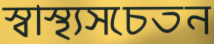
স্বাস্থ্যসচেতন